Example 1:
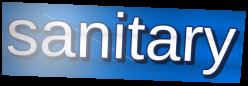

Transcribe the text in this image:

sanitary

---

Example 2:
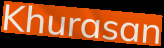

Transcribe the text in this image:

Khurasan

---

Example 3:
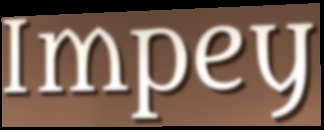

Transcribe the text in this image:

Impey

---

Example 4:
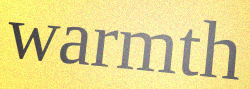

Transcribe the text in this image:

warmth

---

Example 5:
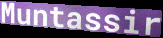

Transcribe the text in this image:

Muntassir